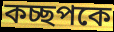
কচ্ছপকে